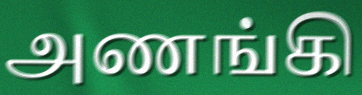
அணங்கி